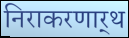
निराकरणार्थ